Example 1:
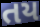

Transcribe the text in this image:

તય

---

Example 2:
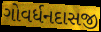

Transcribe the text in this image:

ગોવર્ધનદાસજી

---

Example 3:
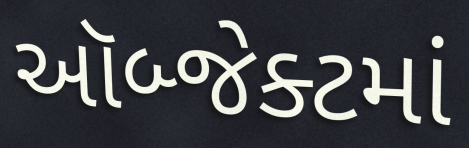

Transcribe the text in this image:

ઑબ્જેક્ટમાં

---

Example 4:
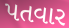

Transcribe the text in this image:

પતવાર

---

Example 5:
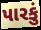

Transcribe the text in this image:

પારકું